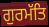
ਗੁਰਮੱਤਿ